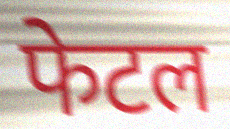
फेटल